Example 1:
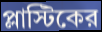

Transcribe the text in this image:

প্লাস্টিকের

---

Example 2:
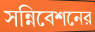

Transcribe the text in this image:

সন্নিবেশনের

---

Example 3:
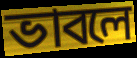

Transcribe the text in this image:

ভাবলে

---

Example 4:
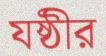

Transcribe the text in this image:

যষ্ঠীর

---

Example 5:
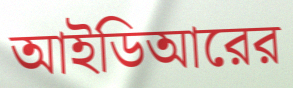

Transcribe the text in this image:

আইডিআরের